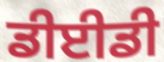
ਡੀਈਡੀ